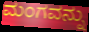
ಮಂಗವನ್ನು